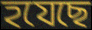
হযেছে